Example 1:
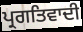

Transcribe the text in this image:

ਪ੍ਰਗਤਿਵਾਦੀ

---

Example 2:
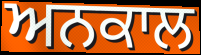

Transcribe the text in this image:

ਅਨਕਾਲ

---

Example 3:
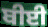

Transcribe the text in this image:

ਬੀਈ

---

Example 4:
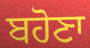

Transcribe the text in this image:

ਬਹੋਣਾ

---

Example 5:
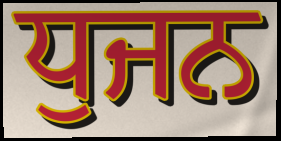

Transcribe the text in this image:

ਧੁਜਨ